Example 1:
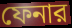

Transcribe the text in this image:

ফেনার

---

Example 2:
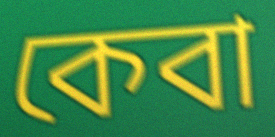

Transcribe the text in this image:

কেবা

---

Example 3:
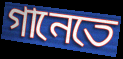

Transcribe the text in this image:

গানেতে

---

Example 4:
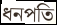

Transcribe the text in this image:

ধনপতি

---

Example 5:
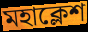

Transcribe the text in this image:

মহাক্লেশ